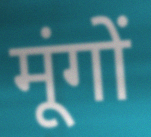
मूंगों